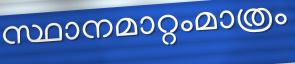
സ്ഥാനമാറ്റംമാത്രം